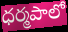
ధర్మపాలో